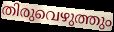
തിരുവെഴുത്തും